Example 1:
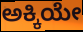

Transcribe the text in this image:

ಅಕ್ಕಿಯೇ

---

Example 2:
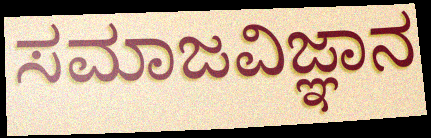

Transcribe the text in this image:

ಸಮಾಜವಿಜ್ಞಾನ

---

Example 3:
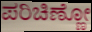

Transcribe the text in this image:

ಪರಿಚಿಣ್ಣೋ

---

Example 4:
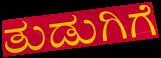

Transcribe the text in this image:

ತುಡುಗಿಗೆ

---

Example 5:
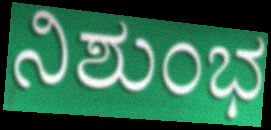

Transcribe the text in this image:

ನಿಶುಂಭ